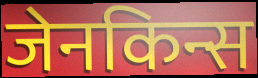
जेनकिन्स